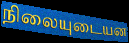
நிலையுடையன